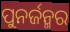
ପୁନର୍ଜନ୍ମର